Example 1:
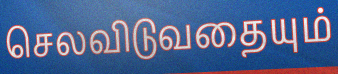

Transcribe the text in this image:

செலவிடுவதையும்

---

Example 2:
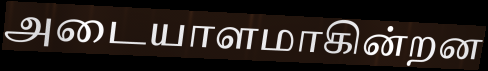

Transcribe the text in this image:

அடையாளமாகின்றன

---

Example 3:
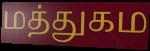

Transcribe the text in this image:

மத்துகம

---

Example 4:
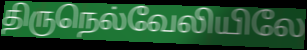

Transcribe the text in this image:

திருநெல்வேலியிலே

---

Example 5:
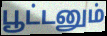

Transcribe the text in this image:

பூட்டனும்